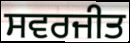
ਸਵਰਜੀਤ